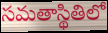
సమతాస్థితిలో